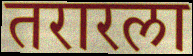
तरारला